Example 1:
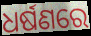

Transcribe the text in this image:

ଧର୍ଷଣରେ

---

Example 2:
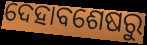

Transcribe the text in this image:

ଦେହାବଶେଷରୁ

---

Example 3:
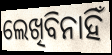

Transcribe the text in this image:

ଲେଖିବିନାହିଁ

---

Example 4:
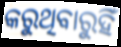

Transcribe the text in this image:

କରୁଥିବାରୁହିଁ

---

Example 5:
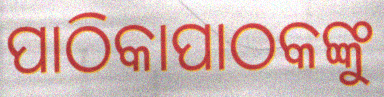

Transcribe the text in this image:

ପାଠିକାପାଠକଙ୍କୁ